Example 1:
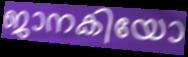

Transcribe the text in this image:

ജാനകിയോ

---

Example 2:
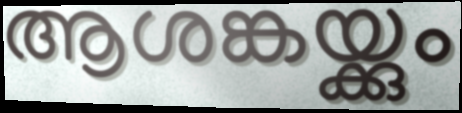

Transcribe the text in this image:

ആശങ്കയ്ക്കും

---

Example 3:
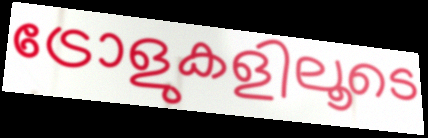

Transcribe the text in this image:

ട്രോളുകളിലൂടെ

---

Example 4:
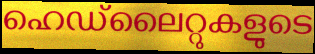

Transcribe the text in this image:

ഹെഡ്‌ലൈറ്റുകളുടെ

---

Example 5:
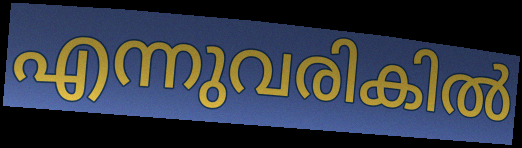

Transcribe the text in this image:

എന്നുവരികിൽ